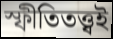
স্ফীতিতত্ত্বই